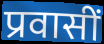
प्रवासीं